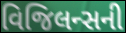
વિજિલન્સની